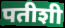
पतीशी